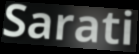
Sarati